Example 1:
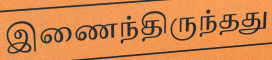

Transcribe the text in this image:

இணைந்திருந்தது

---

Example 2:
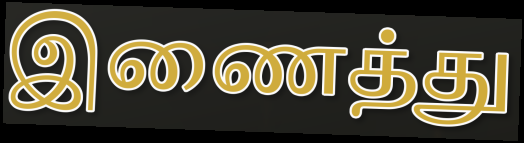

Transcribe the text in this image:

இணைத்து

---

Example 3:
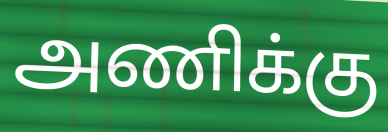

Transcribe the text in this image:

அணிக்கு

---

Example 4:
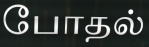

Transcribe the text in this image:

போதல்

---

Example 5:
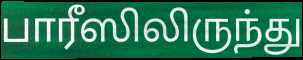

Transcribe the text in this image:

பாரீஸிலிருந்து